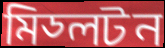
মিড্লটন